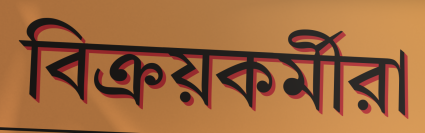
বিক্রয়কর্মীরা